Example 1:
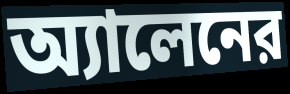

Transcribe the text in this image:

অ্যালেনের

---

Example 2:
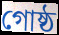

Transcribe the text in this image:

গোষ্ঠ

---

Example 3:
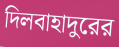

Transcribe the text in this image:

দিলবাহাদুরের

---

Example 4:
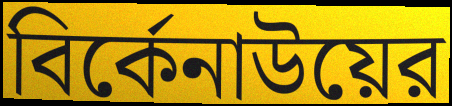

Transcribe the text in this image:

বির্কেনাউয়ের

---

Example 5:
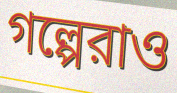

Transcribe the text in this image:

গল্পেরাও